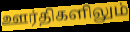
ஊர்திகளிலும்